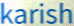
karish